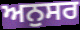
ਅਨੁਸਰ